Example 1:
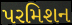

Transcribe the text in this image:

પરમિશન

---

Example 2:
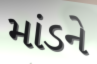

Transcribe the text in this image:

માંડને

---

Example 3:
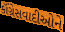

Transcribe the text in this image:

કૉંગ્રેસવાદીઓને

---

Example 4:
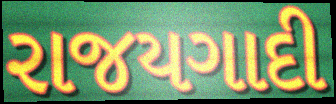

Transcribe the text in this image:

રાજયગાદી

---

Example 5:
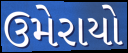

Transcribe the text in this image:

ઉમેરાયો